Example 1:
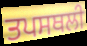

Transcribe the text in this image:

ਤਪਸਥਲੀ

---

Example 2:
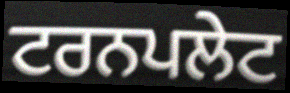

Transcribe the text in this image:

ਟਰਨਪਲੇਟ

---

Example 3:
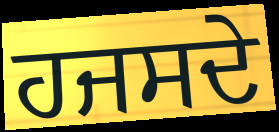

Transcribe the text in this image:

ਹਜਸਦੇ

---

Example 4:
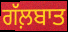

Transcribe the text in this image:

ਗੱਲ਼ਬਾਤ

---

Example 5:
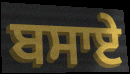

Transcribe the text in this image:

ਬਸਾਏ